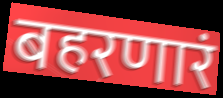
बहरणारं